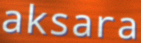
aksara